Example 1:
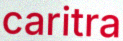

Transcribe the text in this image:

caritra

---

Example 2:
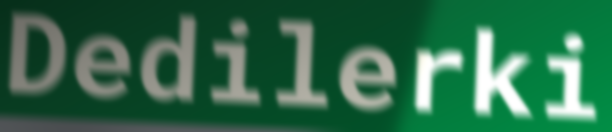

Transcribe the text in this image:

Dedilerki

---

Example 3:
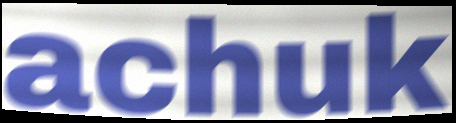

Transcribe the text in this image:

achuk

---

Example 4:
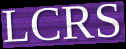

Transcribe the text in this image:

LCRS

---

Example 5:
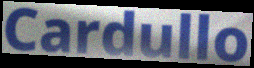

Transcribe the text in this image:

Cardullo